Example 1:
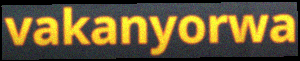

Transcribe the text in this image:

vakanyorwa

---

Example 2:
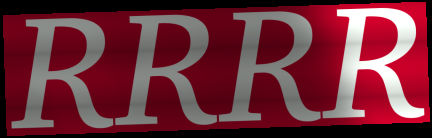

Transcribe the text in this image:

RRRR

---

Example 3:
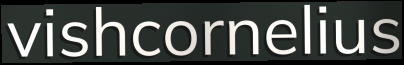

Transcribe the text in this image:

vishcornelius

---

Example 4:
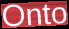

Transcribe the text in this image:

Onto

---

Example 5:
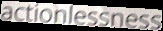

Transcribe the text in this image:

actionlessness